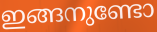
ഇങ്ങനുണ്ടോ